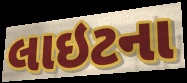
લાઇટના